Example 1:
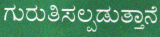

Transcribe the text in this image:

ಗುರುತಿಸಲ್ಪಡುತ್ತಾನೆ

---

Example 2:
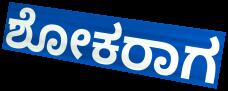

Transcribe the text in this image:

ಶೋಕರಾಗ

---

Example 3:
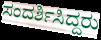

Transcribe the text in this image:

ಸಂದರ್ಶಿಸಿದ್ದರು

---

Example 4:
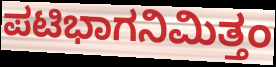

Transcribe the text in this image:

ಪಟಿಭಾಗನಿಮಿತ್ತಂ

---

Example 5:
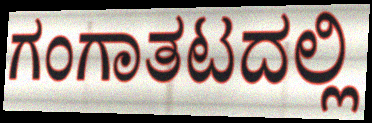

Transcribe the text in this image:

ಗಂಗಾತಟದಲ್ಲಿ